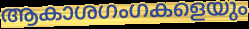
ആകാശഗംഗകളെയും